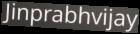
Jinprabhvijay